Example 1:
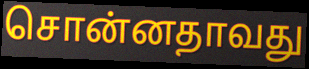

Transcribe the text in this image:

சொன்னதாவது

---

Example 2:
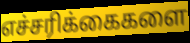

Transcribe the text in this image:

எச்சரிக்கைகளை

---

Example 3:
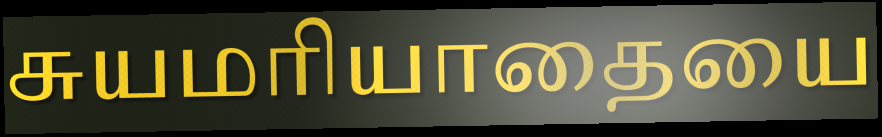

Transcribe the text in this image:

சுயமரியாதையை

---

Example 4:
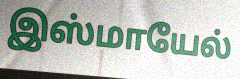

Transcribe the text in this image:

இஸ்மாயேல்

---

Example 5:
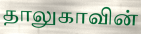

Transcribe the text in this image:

தாலுகாவின்